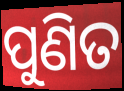
ପୁଣିତ